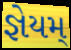
જ્ઞેયમ્